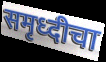
समृध्दीचा